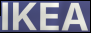
IKEA